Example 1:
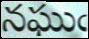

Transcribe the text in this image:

నఘుఁ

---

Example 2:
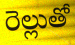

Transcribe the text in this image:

రెల్లుతో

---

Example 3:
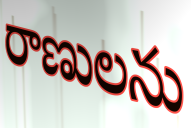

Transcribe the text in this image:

రాణులను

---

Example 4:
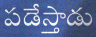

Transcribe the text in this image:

పడేస్తాడు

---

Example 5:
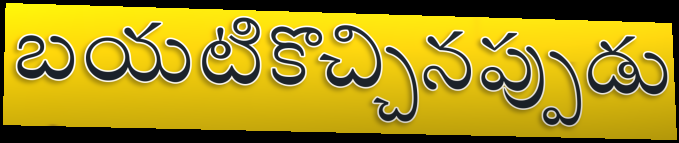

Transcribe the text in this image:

బయటికొచ్చినప్పుడు